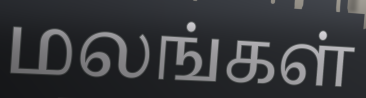
மலங்கள்